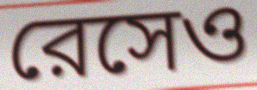
রেসেও